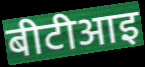
बीटीआइ